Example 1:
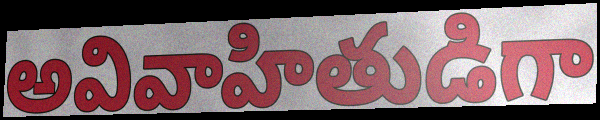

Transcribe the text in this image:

అవివాహితుడిగా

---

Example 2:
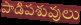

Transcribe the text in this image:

పాడిపశువులు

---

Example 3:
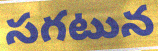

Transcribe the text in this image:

సగటున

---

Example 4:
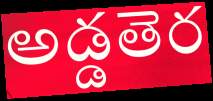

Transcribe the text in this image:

అడ్డతెర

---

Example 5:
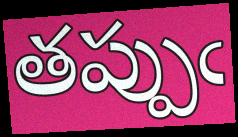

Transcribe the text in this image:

తప్పుఁ